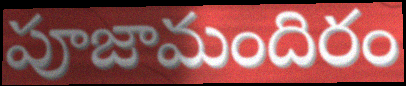
పూజామందిరం